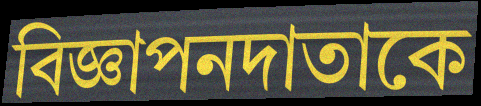
বিজ্ঞাপনদাতাকে